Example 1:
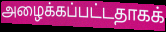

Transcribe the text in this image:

அழைக்கப்பட்டதாகக்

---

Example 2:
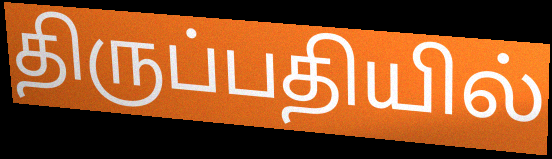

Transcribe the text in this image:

திருப்பதியில்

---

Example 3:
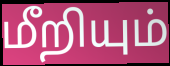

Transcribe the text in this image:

மீறியும்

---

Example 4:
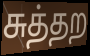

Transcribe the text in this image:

சுத்தற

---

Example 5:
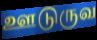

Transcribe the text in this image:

ஊடுருவ